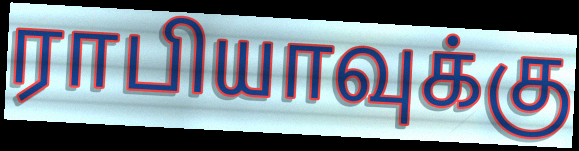
ராபியாவுக்கு